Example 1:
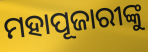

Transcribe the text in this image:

ମହାପୂଜାରୀଙ୍କୁ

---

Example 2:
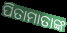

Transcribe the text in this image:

ପିତାମାତାଙ୍କ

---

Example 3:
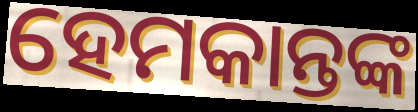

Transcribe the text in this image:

ହେମକାନ୍ତଙ୍କ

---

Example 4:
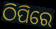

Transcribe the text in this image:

ଠିପିରେ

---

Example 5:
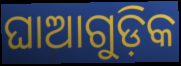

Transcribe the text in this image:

ଘାଆଗୁଡ଼ିକ